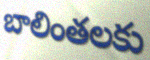
బాలింతలకు